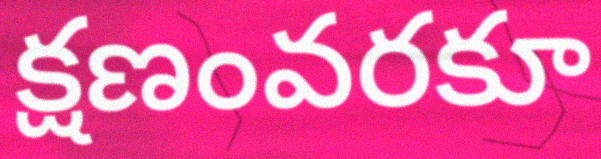
క్షణంవరకూ